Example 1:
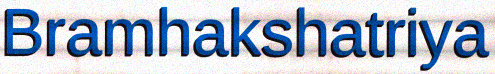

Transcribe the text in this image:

Bramhakshatriya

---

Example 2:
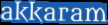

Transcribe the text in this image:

akkaram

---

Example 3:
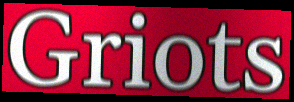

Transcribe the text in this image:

Griots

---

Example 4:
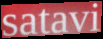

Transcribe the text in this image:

satavi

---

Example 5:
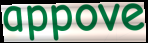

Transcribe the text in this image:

appove